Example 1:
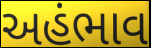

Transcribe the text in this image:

અહંભાવ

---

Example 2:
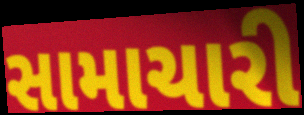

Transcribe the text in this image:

સામાચારી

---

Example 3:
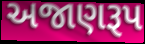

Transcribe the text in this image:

અજાણરૂપ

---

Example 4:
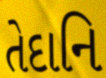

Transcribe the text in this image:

તેદાનિ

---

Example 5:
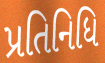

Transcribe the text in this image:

પ્રતિનિધિ